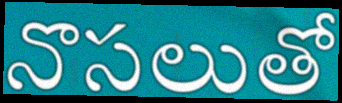
నొసలుతో